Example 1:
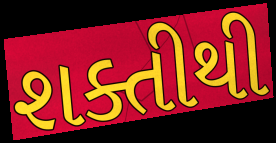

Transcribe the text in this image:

શક્તીથી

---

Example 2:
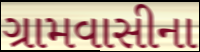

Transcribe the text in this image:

ગ્રામવાસીના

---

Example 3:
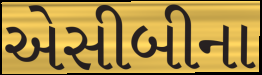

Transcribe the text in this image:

એસીબીના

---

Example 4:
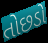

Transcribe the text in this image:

તોછડો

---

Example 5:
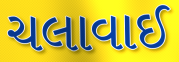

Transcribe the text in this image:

ચલાવાઈ